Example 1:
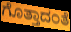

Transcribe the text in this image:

ಗೊತ್ತಾದಂತೆ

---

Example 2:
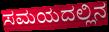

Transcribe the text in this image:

ಸಮಯದಲ್ಲಿನ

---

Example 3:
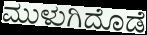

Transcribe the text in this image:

ಮುಳುಗಿದೊಡೆ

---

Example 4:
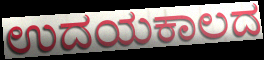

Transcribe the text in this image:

ಉದಯಕಾಲದ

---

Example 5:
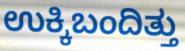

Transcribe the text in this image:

ಉಕ್ಕಿಬಂದಿತ್ತು